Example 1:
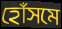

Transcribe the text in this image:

হোঁসমে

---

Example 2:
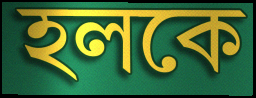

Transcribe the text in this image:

হলকে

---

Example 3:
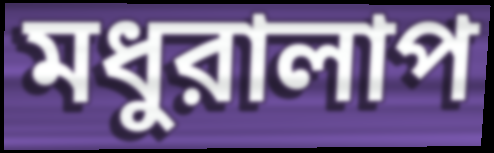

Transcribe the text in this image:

মধুরালাপ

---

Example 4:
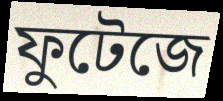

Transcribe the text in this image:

ফুটেজে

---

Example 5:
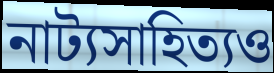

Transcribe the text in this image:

নাট্যসাহিত্যও